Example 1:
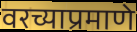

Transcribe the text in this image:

वरच्याप्रमाणे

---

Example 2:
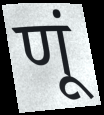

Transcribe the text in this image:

णूं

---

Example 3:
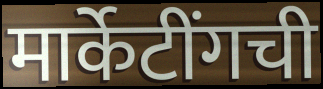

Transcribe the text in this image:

मार्केटींगची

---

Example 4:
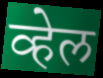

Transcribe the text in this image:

व्हेल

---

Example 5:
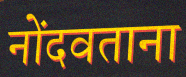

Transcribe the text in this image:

नोंदवताना